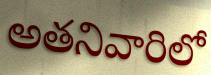
అతనివారిలో